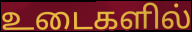
உடைகளில்